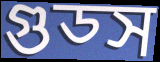
গুড্স